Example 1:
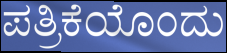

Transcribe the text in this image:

ಪತ್ರಿಕೆಯೊಂದು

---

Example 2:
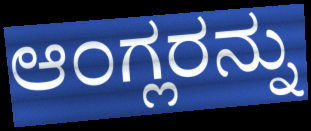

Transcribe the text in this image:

ಆಂಗ್ಲರನ್ನು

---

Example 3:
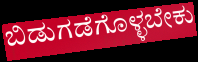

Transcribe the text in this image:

ಬಿಡುಗಡೆಗೊಳ್ಳಬೇಕು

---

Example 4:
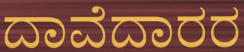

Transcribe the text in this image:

ದಾವೆದಾರರ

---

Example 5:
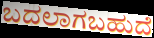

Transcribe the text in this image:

ಬದಲಾಗಬಹುದೆ